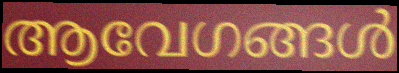
ആവേഗങ്ങൾ